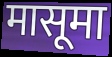
मासूमा